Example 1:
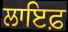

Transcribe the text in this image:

ਲਾਇਫ਼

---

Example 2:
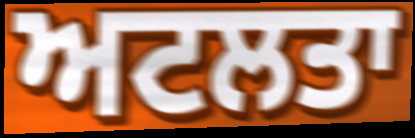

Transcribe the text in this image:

ਅਟਲਤਾ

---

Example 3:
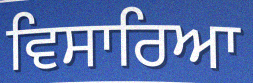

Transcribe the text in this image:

ਵਿਸਾਰਿਆ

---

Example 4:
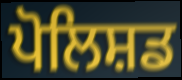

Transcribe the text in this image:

ਪੋਲਿਸ਼ਡ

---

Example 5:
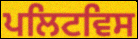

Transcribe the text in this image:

ਪਲਿਟਵਿਸ